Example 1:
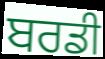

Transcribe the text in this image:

ਬਰਡੀ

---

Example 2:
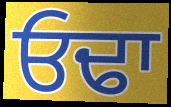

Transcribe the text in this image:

ਓਢਾ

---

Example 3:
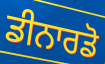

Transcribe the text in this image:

ਡੀਨਾਰਡੋ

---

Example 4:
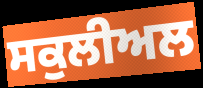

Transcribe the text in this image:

ਸਕੁਲੀਅਲ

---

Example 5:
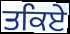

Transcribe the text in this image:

ਤਕਿਏ